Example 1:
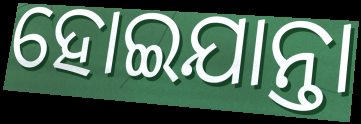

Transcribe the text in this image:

ହୋଇଯାନ୍ତା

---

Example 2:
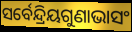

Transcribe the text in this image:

ସର୍ବେନ୍ଦ୍ରିୟଗୁଣାଭାସଂ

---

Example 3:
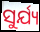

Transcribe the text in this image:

ସୁର୍ଯ୍ୟ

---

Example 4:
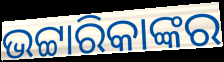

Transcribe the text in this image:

ଭଟ୍ଟାରିକାଙ୍କର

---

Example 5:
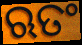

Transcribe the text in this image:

ଋତଂ